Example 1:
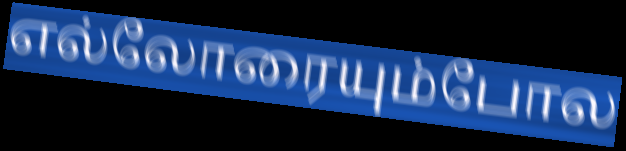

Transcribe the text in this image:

எல்லோரையும்போல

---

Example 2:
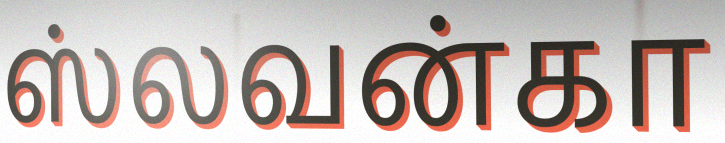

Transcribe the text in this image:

ஸ்லவன்கா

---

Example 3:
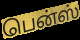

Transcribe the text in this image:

பென்ஸ்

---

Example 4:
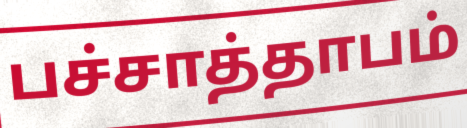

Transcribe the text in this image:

பச்சாத்தாபம்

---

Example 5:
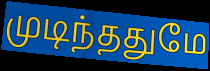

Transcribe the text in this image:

முடிந்ததுமே